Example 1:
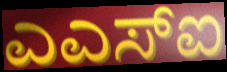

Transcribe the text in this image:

ಎಎಸ್ಐ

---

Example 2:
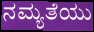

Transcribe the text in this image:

ನಮ್ಯತೆಯು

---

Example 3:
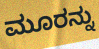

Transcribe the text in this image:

ಮೂರನ್ನು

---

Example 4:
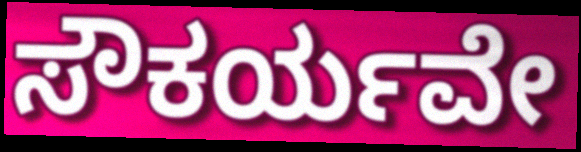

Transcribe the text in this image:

ಸೌಕರ್ಯವೇ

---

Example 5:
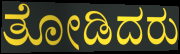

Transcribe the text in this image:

ತೋಡಿದರು